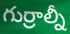
గుర్రాల్నీ